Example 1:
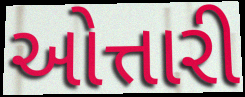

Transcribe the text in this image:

ઓત્તારી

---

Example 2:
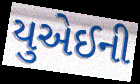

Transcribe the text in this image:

યુએઈની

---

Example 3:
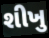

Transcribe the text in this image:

શીખુ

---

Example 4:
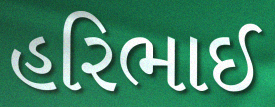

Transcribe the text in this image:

હરિભાઈ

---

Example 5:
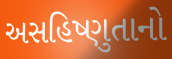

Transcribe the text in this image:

અસહિષ્ણુતાનો